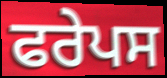
ਫਰੇਪਸ